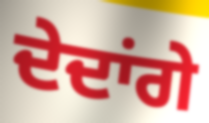
ਦੇਦਾਂਗੇ